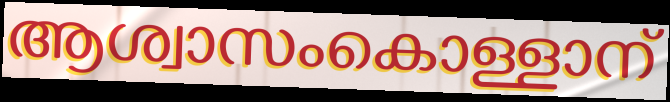
ആശ്വാസംകൊള്ളാന്